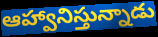
ఆహ్వానిస్తున్నాడు